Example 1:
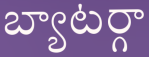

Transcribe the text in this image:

బ్యాటర్గా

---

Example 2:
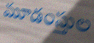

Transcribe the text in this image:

మూడంస్తుల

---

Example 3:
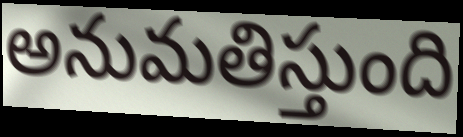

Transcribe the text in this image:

అనుమతిస్తుంది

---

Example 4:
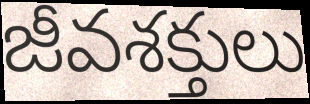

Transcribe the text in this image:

జీవశక్తులు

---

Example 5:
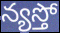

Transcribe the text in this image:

న్యస్తో